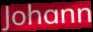
Johann